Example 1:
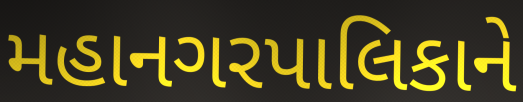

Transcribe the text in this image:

મહાનગરપાલિકાને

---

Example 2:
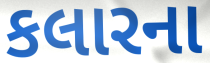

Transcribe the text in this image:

કલારના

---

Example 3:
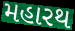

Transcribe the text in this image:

મહારથ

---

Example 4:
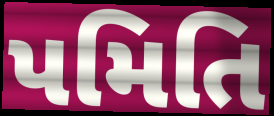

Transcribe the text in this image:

પમિતિ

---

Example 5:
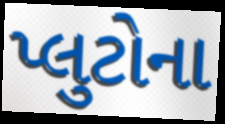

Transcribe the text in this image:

પ્લુટોના